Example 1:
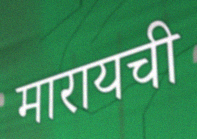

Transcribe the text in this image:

मारायची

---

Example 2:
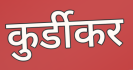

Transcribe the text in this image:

कुर्डीकर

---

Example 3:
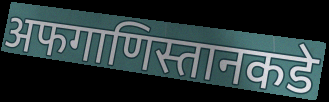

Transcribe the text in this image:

अफगाणिस्तानकडे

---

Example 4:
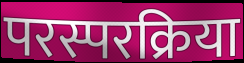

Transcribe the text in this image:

परस्परक्रिया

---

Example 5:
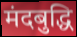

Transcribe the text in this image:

मंदबुद्धि